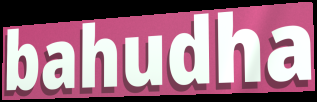
bahudha